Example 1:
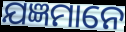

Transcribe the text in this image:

ଯଜ୍ଞମାନେ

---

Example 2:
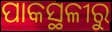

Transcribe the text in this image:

ପାକସ୍ଥଳୀରୁ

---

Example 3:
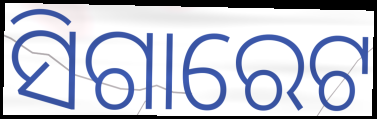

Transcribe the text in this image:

ସିଗାରେଟ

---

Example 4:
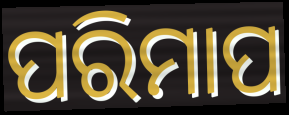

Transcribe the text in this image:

ପରିମାପ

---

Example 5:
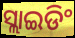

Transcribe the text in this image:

ସ୍ଲାଇଡିଂ